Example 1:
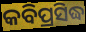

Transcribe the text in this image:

କବିପ୍ରସିଦ୍ଧ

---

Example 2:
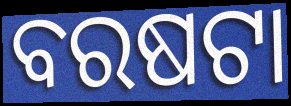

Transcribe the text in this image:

ବରଷଟା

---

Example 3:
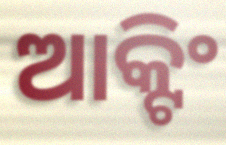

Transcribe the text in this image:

ଆକ୍ଟିଂ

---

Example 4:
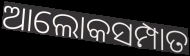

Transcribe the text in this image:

ଆଲୋକସମ୍ପାତ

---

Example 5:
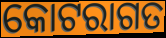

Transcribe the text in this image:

କୋଟରାଗତ